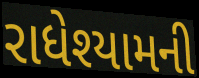
રાધેશ્યામની